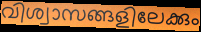
വിശ്വാസങ്ങളിലേക്കും